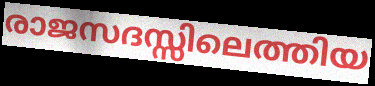
രാജസദസ്സിലെത്തിയ